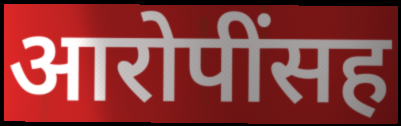
आरोपींसह